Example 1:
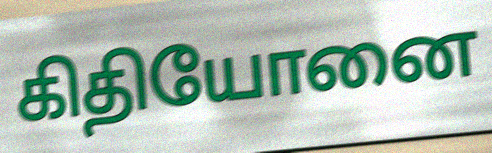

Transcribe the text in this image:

கிதியோனை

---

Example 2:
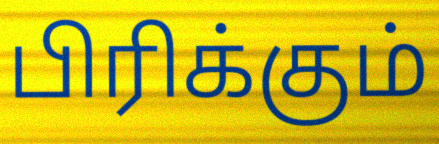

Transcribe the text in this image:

பிரிக்கும்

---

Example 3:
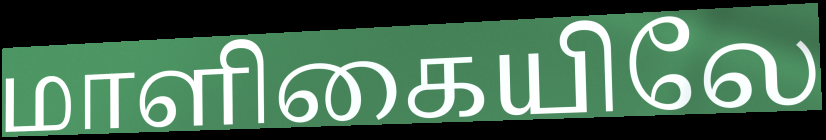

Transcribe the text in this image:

மாளிகையிலே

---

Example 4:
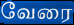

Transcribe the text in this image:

வேரை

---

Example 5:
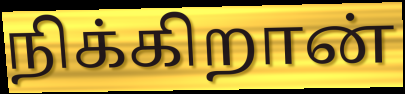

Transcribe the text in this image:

நிக்கிறான்